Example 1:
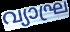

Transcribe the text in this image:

വ്യാഘ്ര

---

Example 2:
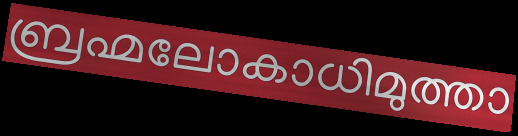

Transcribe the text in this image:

ബ്രഹ്മലോകാധിമുത്താ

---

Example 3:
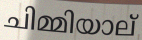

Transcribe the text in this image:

ചിമ്മിയാല്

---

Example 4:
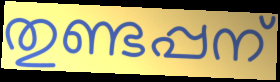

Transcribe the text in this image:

തുണ്ടപ്പന്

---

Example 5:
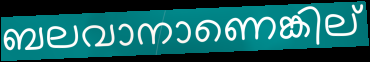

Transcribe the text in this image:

ബലവാനാണെങ്കില്